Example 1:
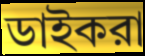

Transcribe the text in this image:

ডাইকরা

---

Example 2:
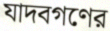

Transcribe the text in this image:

যাদবগণের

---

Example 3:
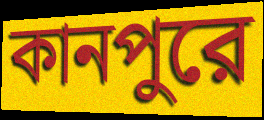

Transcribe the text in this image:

কানপুরে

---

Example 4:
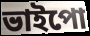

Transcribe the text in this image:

ভাইপো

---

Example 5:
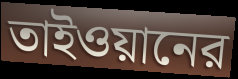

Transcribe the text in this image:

তাইওয়ানের